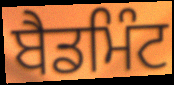
ਬੈਡਮਿੰਟ